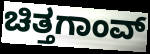
ಚಿತ್ತಗಾಂವ್